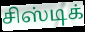
சிஸ்டிக்